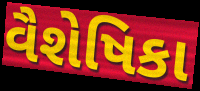
વૈશેષિકા